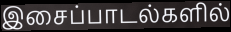
இசைப்பாடல்களில்